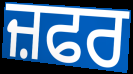
ਜ਼ਫਰ